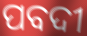
ପବଦୀ